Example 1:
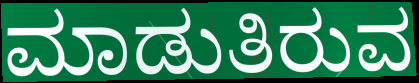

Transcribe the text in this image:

ಮಾಡುತಿರುವ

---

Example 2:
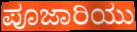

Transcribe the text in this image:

ಪೂಜಾರಿಯು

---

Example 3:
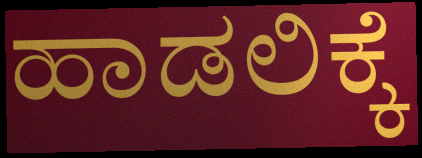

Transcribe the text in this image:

ಹಾಡಲಿಕ್ಕೆ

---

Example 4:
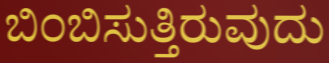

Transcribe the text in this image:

ಬಿಂಬಿಸುತ್ತಿರುವುದು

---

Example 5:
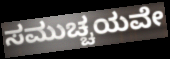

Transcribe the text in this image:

ಸಮುಚ್ಚಯವೇ